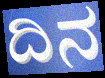
ದಿನ